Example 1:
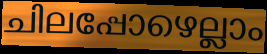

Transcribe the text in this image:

ചിലപ്പോഴെല്ലാം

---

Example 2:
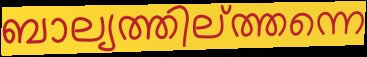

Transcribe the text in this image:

ബാല്യത്തില്ത്തന്നെ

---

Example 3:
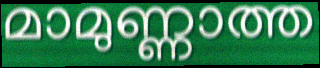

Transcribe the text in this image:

മാമുണ്ണാത്ത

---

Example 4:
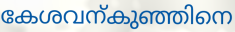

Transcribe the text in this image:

കേശവന്കുഞ്ഞിനെ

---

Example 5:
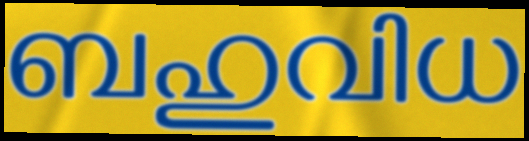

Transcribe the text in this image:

ബഹുവിധ